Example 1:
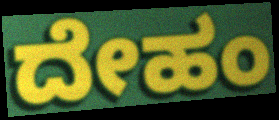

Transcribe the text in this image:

ದೇಹಂ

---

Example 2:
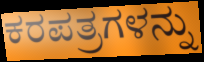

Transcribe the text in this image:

ಕರಪತ್ರಗಳನ್ನು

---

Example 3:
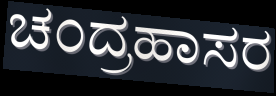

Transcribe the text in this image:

ಚಂದ್ರಹಾಸರ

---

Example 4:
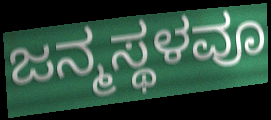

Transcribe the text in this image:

ಜನ್ಮಸ್ಥಳವೂ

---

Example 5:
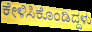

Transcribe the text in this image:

ಕೇಳಿಸಿಕೊಂಡಿದ್ದಳು